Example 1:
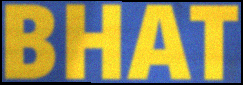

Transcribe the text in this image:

BHAT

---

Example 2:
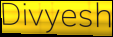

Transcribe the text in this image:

Divyesh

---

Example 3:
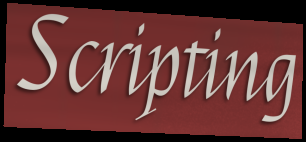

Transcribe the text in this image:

Scripting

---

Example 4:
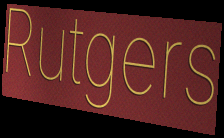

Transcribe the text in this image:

Rutgers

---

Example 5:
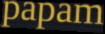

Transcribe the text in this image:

papam